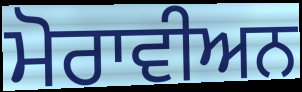
ਮੋਰਾਵੀਅਨ